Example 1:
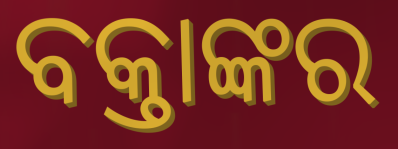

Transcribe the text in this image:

ବକ୍ତାଙ୍କର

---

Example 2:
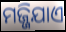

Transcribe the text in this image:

ମଜ୍ଜିଯାଏ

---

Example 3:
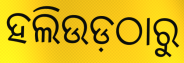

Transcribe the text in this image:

ହଲିଉଡ଼ଠାରୁ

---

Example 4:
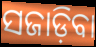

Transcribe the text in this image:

ସଜାଡ଼ିବା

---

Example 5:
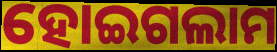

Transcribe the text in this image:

ହୋଇଗଲାମ